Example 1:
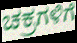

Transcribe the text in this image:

ಚಕ್ರಗಳಿಗೆ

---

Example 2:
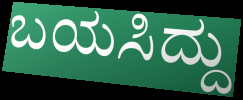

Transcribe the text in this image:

ಬಯಸಿದ್ದು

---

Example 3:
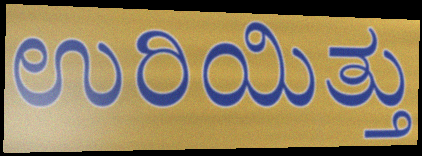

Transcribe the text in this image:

ಉರಿಯಿತ್ತು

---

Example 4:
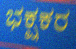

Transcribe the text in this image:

ಭಕ್ಷಕರ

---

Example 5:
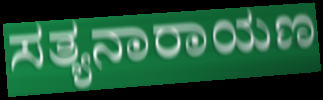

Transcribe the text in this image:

ಸತ್ಯನಾರಾಯಣ